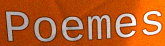
Poemes